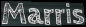
Marris